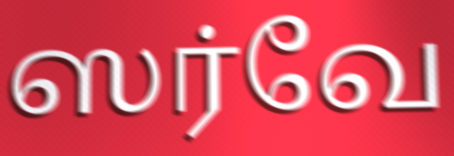
ஸர்வே